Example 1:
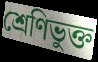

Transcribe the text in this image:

শ্রেণিভুক্ত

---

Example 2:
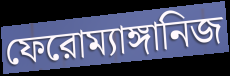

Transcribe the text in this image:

ফেরোম্যাঙ্গানিজ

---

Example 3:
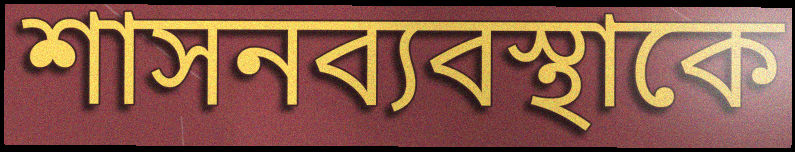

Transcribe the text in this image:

শাসনব্যবস্থাকে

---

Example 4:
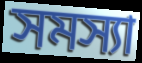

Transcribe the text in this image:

সমস্যা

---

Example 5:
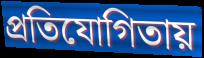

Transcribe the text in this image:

প্রতিযোগিতায়